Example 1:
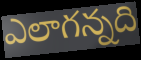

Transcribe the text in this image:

ఎలాగన్నది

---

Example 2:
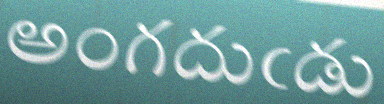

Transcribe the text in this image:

అంగదుఁడు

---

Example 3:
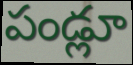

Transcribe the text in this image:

పండ్లూ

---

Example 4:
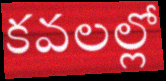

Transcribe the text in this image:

కవలల్లో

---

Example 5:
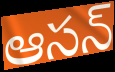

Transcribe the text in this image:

ఆసన్